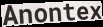
Anontex